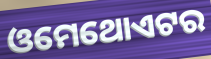
ଓମେଥୋଏଟର